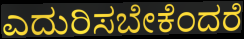
ಎದುರಿಸಬೇಕೆಂದರೆ